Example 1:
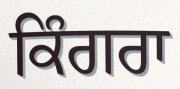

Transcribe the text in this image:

ਕਿੰਗਰਾ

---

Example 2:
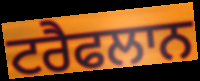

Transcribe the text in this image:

ਟਰੈਫਲਾਨ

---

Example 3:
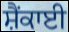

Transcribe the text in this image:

ਸ਼ੈਂਕਾਈ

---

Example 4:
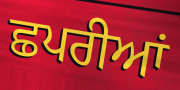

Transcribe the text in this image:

ਛਪਰੀਆਂ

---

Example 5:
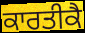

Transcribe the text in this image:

ਕਾਰਤੀਕੈ